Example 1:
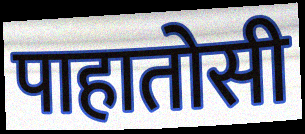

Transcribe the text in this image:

पाहातोसी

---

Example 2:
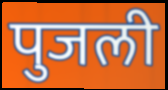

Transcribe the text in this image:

पुजली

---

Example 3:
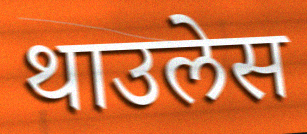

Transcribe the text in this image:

थाउलेस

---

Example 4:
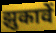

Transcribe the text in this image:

झुकावें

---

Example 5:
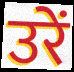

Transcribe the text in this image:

उरें